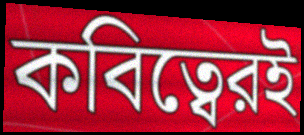
কবিত্বেরই